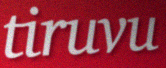
tiruvu